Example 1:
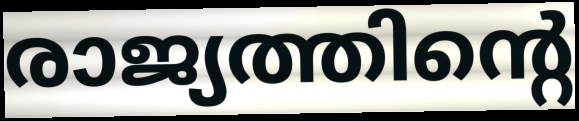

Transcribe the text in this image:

രാജ്യത്തിന്റെ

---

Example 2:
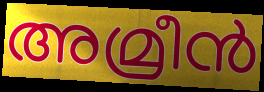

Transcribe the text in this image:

അമ്രീൻ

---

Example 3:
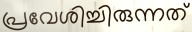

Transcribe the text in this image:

പ്രവേശിച്ചിരുന്നത്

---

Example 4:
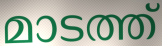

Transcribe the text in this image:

മാടത്ത്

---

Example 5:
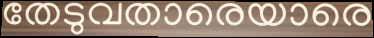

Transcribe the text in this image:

തേടുവതാരെയാരെ